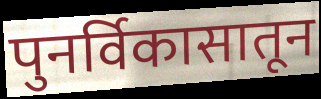
पुनर्विकासातून